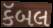
કૅબલ